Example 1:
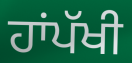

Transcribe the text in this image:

ਹਾਂਪੱਖੀ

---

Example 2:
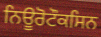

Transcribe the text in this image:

ਨਿਊਰੋਟੌਕਸਿਨ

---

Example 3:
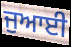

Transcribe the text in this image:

ਜੁਆਈ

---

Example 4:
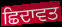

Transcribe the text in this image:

ਛਿਦਾਵਤ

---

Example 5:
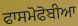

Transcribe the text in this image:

ਫਾਸਮੋਫੋਬੀਆ